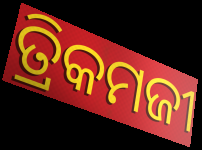
ତ୍ରିକମଜୀ